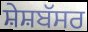
ਸ਼ੇਸ਼ਬੱਸਰ